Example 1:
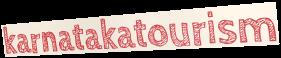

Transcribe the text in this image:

karnatakatourism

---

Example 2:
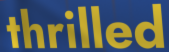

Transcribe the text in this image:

thrilled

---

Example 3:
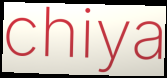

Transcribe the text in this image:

chiya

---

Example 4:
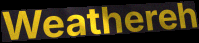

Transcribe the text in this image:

Weathereh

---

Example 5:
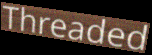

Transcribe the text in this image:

Threaded